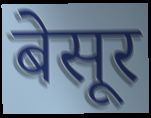
बेसूर